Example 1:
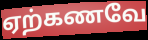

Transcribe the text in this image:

ஏற்கணவே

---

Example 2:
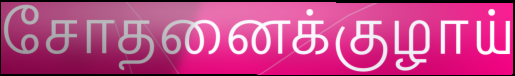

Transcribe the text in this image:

சோதனைக்குழாய்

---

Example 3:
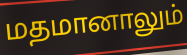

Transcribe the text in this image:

மதமானாலும்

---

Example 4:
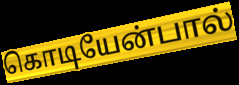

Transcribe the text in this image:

கொடியேன்பால்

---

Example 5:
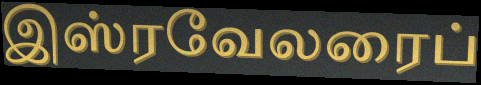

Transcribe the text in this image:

இஸ்ரவேலரைப்